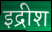
इद्रीश